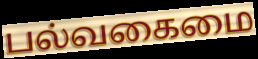
பல்வகைமை